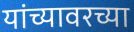
यांच्यावरच्या